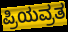
ಪ್ರಿಯವ್ರತ